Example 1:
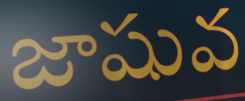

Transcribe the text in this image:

జాషువ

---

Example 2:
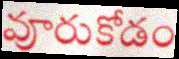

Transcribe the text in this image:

వూరుకోడం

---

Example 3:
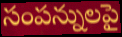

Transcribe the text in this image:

సంపన్నులపై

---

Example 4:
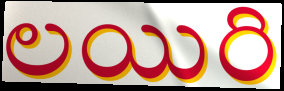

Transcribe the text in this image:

లయిరి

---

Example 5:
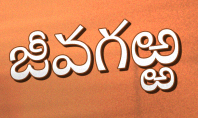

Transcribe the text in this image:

జీవగఱ్ఱ